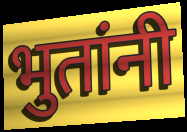
भुतांनी